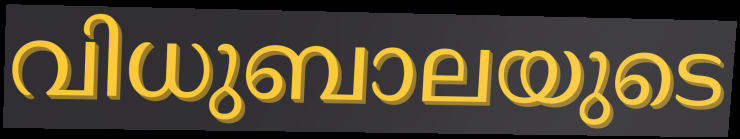
വിധുബാലയുടെ